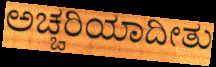
ಅಚ್ಚರಿಯಾದೀತು